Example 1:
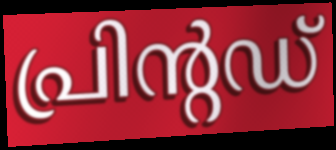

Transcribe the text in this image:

പ്രിന്റഡ്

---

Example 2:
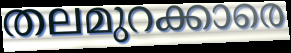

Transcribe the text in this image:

തലമുറക്കാരെ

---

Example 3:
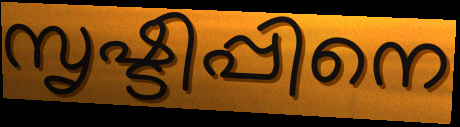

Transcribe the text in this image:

സൃഷ്ടിപ്പിനെ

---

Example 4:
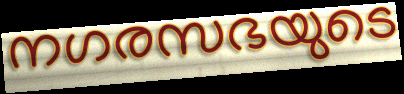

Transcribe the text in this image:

നഗരസഭയുടെ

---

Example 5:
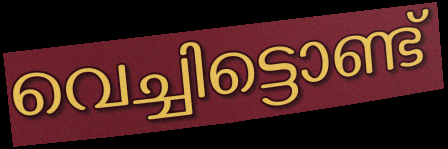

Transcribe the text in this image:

വെച്ചിട്ടൊണ്ട്